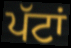
ਪੱਟਾਂ